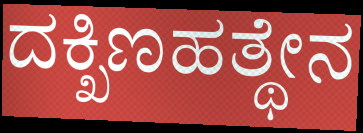
ದಕ್ಖಿಣಹತ್ಥೇನ